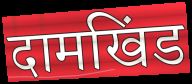
दामखिंड